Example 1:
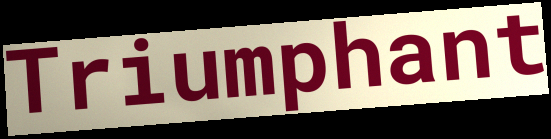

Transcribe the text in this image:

Triumphant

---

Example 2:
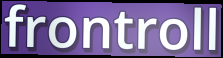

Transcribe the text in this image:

frontroll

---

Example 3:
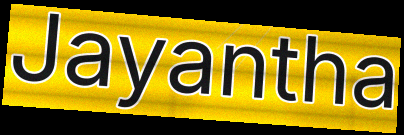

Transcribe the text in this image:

Jayantha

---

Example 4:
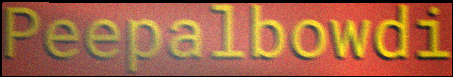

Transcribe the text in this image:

Peepalbowdi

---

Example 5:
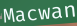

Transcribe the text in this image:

Macwan